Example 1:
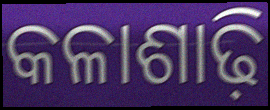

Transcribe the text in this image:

କଳାଶାଢ଼ି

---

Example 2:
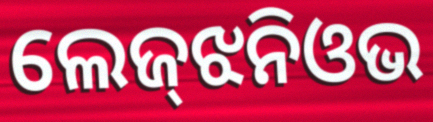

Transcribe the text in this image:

ଲେଜ୍‌ଝନିଓଭ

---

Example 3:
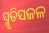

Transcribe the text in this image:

ସ୍ମୃତିସଜଳ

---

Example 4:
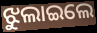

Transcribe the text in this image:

ଝୁଲାଇଲେ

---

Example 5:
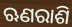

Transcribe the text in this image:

ଋଣରାଶି